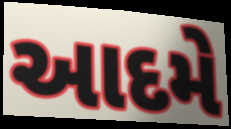
આદમે